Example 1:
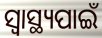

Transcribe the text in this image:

ସ୍ବାସ୍ଥ୍ୟପାଇଁ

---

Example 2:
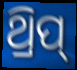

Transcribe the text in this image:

ଥ୍ରିପ୍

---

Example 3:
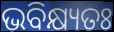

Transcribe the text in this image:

ଭବିକ୍ଷ୍ୟତଃ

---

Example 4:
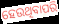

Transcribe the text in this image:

ହେଉଥିବାପରି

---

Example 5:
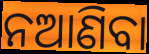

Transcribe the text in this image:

ନଆଣିବା